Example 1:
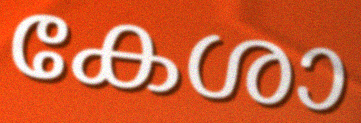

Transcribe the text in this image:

കേശാ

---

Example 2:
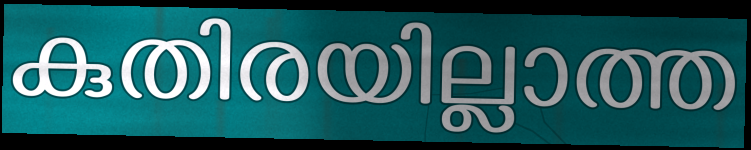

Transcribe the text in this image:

കുതിരയില്ലാത്ത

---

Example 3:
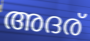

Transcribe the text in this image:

അദര്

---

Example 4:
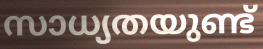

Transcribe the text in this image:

സാധ്യതയുണ്ട്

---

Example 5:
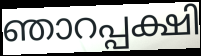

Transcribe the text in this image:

ഞാറപ്പക്ഷി